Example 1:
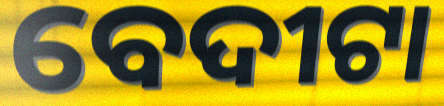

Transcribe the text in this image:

ବେଦୀଟା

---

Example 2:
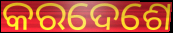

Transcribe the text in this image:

କରଦେଶେ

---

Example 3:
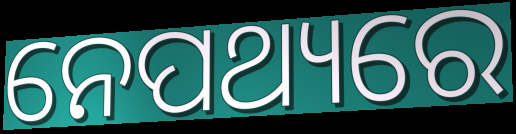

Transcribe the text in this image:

ନେପଥ୍ୟରେ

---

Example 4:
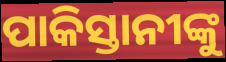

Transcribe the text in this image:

ପାକିସ୍ତାନୀଙ୍କୁ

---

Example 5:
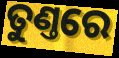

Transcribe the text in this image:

ତୁଣ୍ତରେ